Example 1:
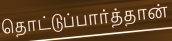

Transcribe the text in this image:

தொட்டுப்பார்த்தான்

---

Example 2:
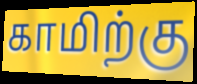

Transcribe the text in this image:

காமிற்கு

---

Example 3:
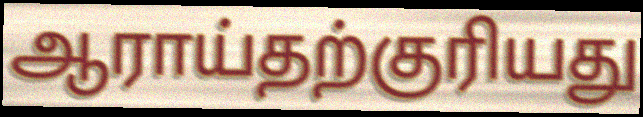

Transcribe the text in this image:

ஆராய்தற்குரியது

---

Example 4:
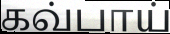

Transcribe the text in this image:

கவ்பாய்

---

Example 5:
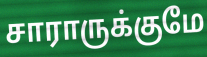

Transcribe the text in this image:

சாராருக்குமே